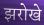
झरोखे